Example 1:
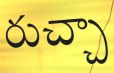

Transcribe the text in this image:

రుచ్చా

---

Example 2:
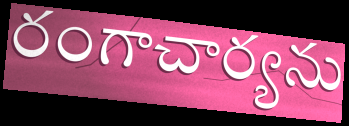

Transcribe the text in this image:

రంగాచార్యను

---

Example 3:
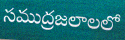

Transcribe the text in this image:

సముద్రజలాలలో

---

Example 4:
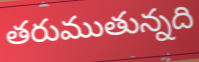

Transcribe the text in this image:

తరుముతున్నది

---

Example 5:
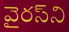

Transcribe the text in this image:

వైరస్‌ని